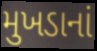
મુખડાનાં